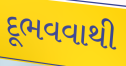
દૂભવવાથી